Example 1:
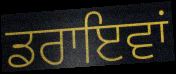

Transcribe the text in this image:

ਡਰਾਇਵਾਂ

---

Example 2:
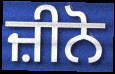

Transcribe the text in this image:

ਜ਼ੀਨੋ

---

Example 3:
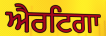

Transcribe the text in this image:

ਐਰਟਿਗਾ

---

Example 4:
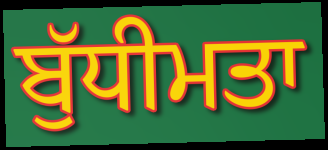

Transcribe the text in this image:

ਬੁੱਧੀਮਤਾ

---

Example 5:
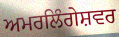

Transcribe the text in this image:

ਅਮਰਲਿੰਗੇਸ਼ਵਰ